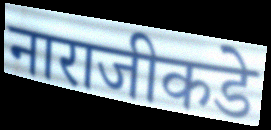
नाराजीकडे